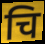
चि